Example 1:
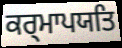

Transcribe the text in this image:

ਕਰ੍ਮਾਪਯਤਿ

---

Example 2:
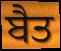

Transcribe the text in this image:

ਬੈਤ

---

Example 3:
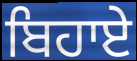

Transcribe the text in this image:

ਬਿਹਾਏ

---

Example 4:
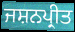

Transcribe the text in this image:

ਜਸ਼ਨਪ੍ਰੀਤ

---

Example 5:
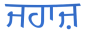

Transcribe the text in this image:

ਜਹਾਜ਼